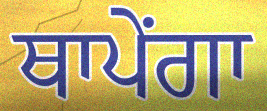
ਥਾਪੇਂਗਾ